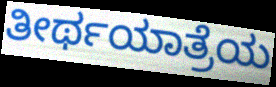
ತೀರ್ಥಯಾತ್ರೆಯ